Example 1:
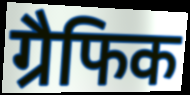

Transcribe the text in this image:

ग्रैफिक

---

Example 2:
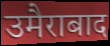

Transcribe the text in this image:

उमैराबाद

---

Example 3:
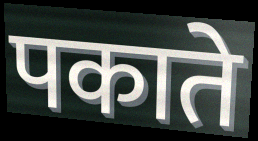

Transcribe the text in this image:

पकाते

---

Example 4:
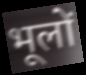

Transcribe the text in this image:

भूलों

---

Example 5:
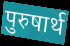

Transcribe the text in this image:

पुरुषार्थ